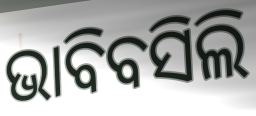
ଭାବିବସିଲି